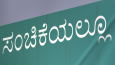
ಸಂಚಿಕೆಯಲ್ಲೂ